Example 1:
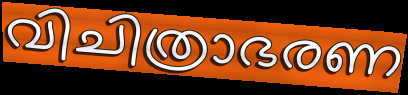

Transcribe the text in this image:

വിചിത്രാഭരണ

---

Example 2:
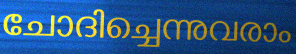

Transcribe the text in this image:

ചോദിച്ചെന്നുവരാം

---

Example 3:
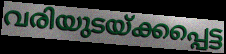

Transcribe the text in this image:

വരിയുടയ്ക്കപ്പെട്ട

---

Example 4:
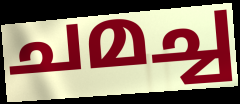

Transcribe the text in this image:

ചമച്ച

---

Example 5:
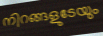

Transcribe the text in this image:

നിറങ്ങളുടേയും